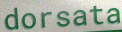
dorsata